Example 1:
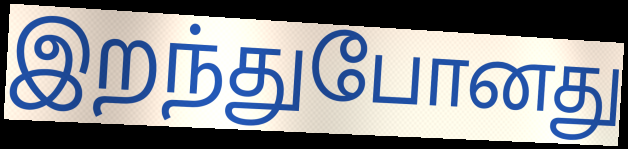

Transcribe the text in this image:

இறந்துபோனது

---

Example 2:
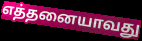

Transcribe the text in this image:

எத்தனையாவது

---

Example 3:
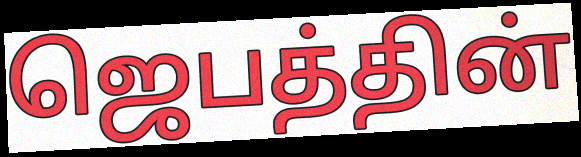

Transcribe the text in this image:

ஜெபத்தின்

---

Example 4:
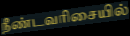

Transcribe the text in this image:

நீண்டவரிசையில்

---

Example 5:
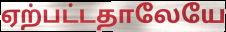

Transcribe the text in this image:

ஏற்பட்டதாலேயே